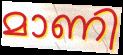
മാണി